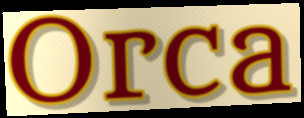
Orca